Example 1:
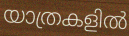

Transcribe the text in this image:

യാത്രകളിൽ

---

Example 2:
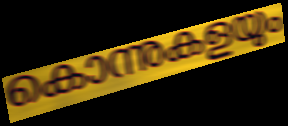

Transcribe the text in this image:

കൊന്നുകളയും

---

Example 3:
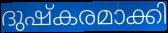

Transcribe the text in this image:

ദുഷ്കരമാക്കി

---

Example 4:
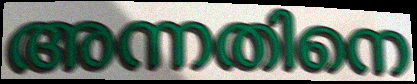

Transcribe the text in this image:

അന്നതിനെ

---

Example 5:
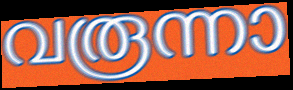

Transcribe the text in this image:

വരൂന്നാ